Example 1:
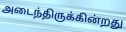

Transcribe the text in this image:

அடைந்திருக்கின்றது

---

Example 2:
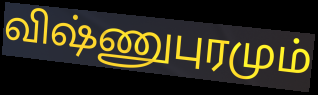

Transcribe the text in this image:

விஷ்ணுபுரமும்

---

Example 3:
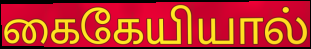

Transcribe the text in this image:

கைகேயியால்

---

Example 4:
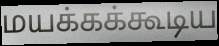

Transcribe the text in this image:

மயக்கக்கூடிய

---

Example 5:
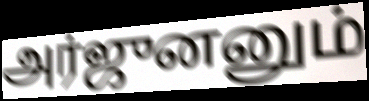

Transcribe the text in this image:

அர்ஜுனனும்